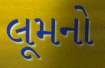
લૂમનો